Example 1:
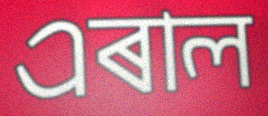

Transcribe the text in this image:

এৰাল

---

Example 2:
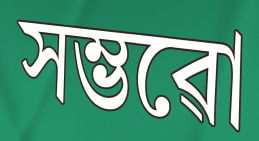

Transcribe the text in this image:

সম্ভৱো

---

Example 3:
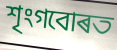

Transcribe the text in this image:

শৃংগবোৰত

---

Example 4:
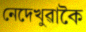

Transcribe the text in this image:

নেদেখুৱাকৈ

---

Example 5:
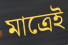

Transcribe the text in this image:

মাত্ৰেই